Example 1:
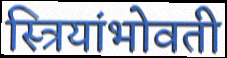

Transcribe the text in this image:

स्त्रियांभोवती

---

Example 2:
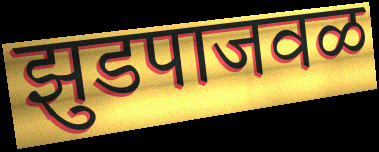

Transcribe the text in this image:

झुडपाजवळ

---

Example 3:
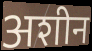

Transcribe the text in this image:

अशीन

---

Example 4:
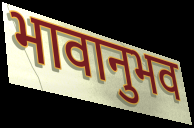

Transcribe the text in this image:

भावानुभव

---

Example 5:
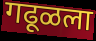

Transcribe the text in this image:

गढूळला